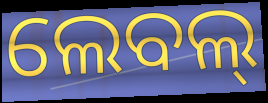
ଲେବଲ୍